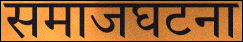
समाजघटना